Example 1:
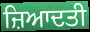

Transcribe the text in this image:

ਜ਼ਿਆਦਤੀ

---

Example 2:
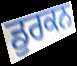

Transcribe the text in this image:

ਡੁਰਕਨ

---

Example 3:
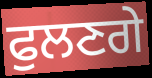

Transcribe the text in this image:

ਫੁਲਣਗੇ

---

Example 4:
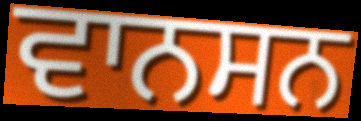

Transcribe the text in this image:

ਵਾਨਸਨ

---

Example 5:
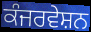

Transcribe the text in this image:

ਕੰਜਰਵੇਸ਼ਨ